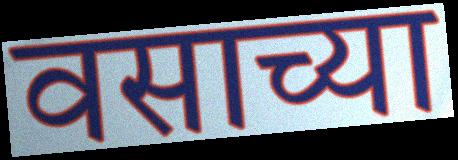
वसाच्या